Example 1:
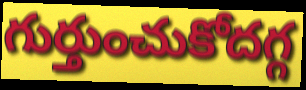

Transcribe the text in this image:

గుర్తుంచుకోదగ్గ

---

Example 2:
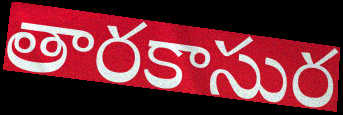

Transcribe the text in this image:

తారకాసుర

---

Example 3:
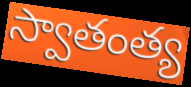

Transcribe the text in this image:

స్వాతంత్య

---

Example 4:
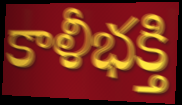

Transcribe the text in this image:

కాళీభక్తి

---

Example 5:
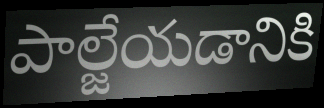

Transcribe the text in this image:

పాల్జేయడానికి